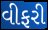
વીફરી